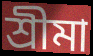
শ্রীমা